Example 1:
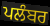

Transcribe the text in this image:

ਪਲੰਬਰ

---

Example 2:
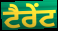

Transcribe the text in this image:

ਟੈਰੇਂਟ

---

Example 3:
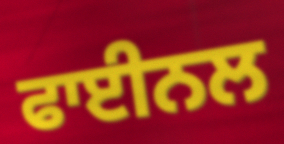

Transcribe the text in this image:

ਫਾਈਨਲ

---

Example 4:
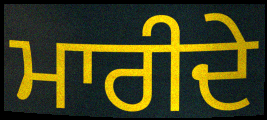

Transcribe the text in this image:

ਮਾਰੀਦੇ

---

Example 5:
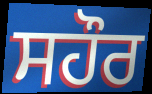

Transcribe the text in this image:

ਸਹੌਰ